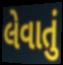
લેવાતું